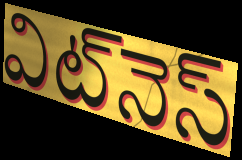
విట్‌నెస్